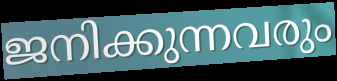
ജനിക്കുന്നവരും